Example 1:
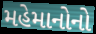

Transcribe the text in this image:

મહેમાનોનો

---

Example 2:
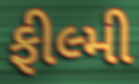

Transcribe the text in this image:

ફીલ્મી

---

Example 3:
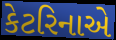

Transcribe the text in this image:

કેટરિનાએ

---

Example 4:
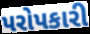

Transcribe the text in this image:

પરોપકારી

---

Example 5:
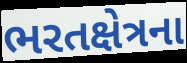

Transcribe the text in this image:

ભરતક્ષેત્રના